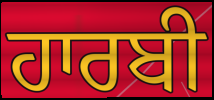
ਹਾਰਬੀ